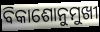
ବିକାଶୋନୁମୁଖୀ